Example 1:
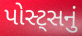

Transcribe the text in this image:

પોસ્ટ્સનું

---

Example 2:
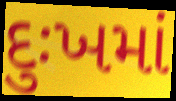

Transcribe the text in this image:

દુઃખમાં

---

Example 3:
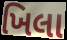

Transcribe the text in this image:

ખિલા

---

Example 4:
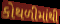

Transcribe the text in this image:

કોથળીમાંથી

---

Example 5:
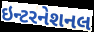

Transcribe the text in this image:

ઇન્ટરનેશનલ